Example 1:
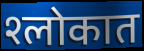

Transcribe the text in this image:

श्लोकात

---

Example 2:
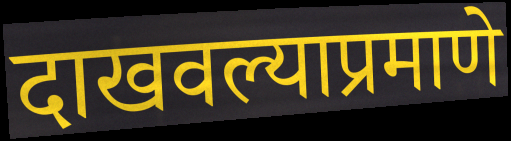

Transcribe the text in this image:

दाखवल्याप्रमाणे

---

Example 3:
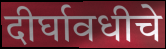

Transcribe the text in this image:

दीर्घावधीचे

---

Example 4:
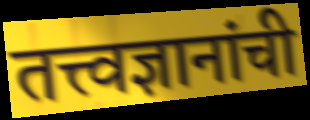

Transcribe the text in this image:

तत्त्वज्ञानांची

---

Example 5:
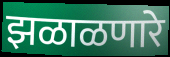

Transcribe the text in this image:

झळाळणारे